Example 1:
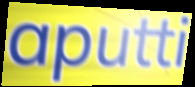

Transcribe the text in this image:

aputti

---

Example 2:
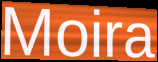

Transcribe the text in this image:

Moira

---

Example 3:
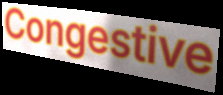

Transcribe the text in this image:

Congestive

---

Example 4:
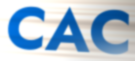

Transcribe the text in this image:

CAC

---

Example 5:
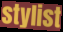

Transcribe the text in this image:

stylist